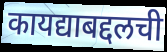
कायद्याबद्दलची